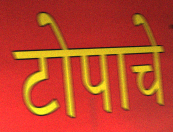
टोपाचे